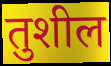
तुशील